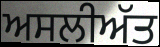
ਅਸਲੀਅੱਤ